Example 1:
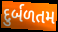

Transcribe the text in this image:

દુર્બળતમ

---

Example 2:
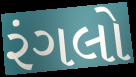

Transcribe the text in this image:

રંગલો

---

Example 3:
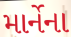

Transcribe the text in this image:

માર્નેના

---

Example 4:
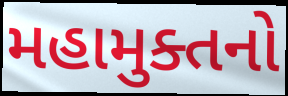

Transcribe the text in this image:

મહામુક્તનો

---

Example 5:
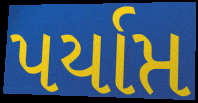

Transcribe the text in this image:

પર્યાપ્ત